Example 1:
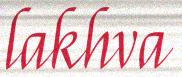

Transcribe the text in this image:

lakhva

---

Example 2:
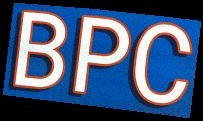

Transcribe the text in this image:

BPC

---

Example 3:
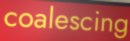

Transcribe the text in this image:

coalescing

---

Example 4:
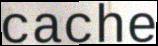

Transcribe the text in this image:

cache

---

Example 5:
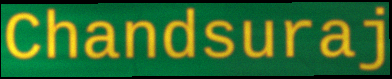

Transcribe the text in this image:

Chandsuraj